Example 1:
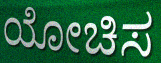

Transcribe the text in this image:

ಯೋಚಿಸ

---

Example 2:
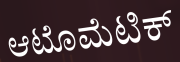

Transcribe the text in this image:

ಆಟೊಮೆಟಿಕ್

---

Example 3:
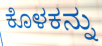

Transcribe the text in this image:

ಕೊಳಕನ್ನು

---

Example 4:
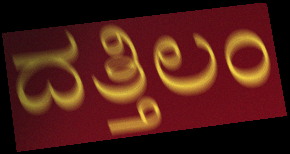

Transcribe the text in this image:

ದತ್ತಿಲಂ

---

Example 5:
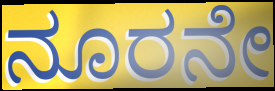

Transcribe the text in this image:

ನೂರನೇ